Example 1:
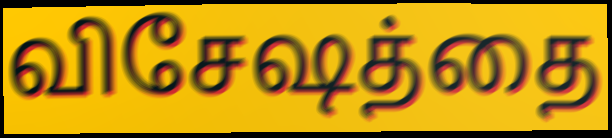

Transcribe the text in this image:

விசேஷத்தை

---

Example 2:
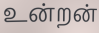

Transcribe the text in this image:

உன்றன்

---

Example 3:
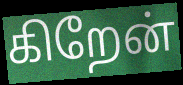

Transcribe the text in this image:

கிறேன்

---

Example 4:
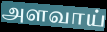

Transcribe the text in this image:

அளவாய்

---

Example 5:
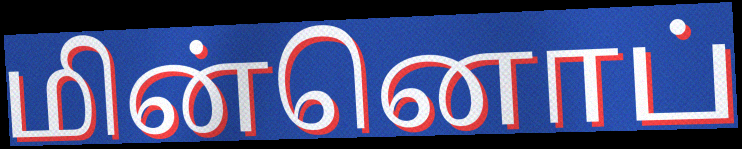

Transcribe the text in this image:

மின்னொப்